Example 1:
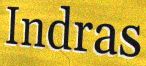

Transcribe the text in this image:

Indras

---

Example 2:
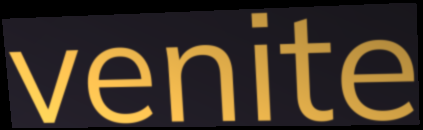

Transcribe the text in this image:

venite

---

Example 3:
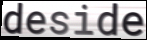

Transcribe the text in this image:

deside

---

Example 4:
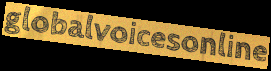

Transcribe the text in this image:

globalvoicesonline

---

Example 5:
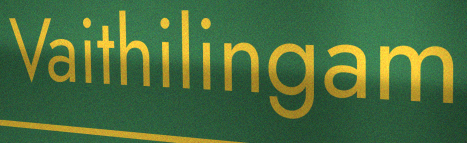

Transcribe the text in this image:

Vaithilingam